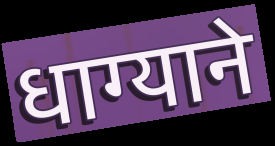
धाग्याने